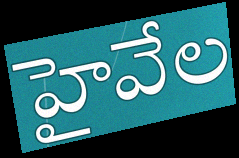
హైవేల